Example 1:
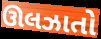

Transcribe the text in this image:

ઊલઝાતો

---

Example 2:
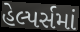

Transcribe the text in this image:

હેલ્પર્સમાં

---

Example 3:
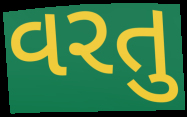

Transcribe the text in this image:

વરતુ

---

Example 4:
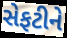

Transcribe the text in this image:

સેફટીને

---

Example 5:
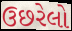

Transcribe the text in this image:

ઉછરેલો